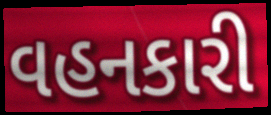
વહનકારી